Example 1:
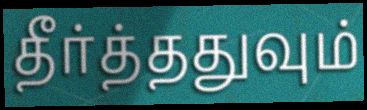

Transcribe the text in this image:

தீர்த்ததுவும்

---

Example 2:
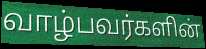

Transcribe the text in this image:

வாழ்பவர்களின்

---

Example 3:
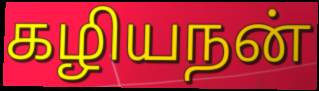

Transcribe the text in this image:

கழியநன்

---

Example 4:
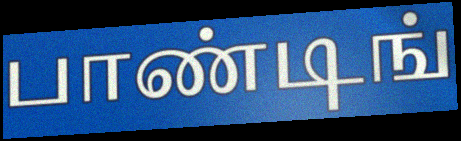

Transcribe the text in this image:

பாண்டிங்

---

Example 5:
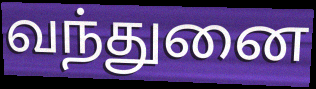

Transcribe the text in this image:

வந்துனை